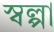
স্বল্পা